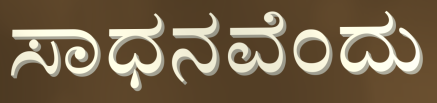
ಸಾಧನವೆಂದು